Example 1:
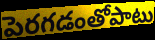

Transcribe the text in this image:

పెరగడంతోపాటు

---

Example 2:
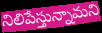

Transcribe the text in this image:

నిలిపేస్తున్నామని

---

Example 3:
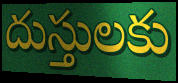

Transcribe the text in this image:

దుస్తులకు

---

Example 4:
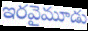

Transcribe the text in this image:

ఇరవైమూడు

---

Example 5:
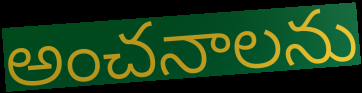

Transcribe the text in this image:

అంచనాలను